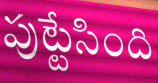
పుట్టేసింది